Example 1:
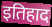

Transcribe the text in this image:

इतिहाद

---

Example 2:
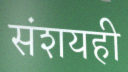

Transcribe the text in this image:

संशयही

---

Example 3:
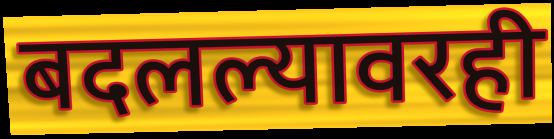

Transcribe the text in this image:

बदलल्यावरही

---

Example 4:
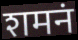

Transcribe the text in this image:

शमनं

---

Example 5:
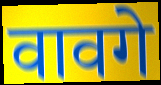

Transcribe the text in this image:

वावगे